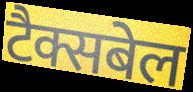
टैक्सबेल